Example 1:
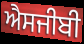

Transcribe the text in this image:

ਐਸਜੀਬੀ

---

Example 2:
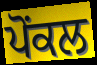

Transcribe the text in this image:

ਪੋਂਕਲ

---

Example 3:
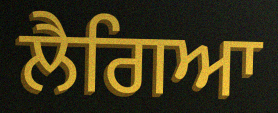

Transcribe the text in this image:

ਲੈਗਿਆ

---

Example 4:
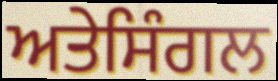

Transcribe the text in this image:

ਅਤੇਸਿੰਗਲ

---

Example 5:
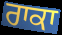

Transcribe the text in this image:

ਰਾਕਾ